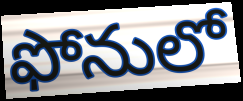
ఫోనులో